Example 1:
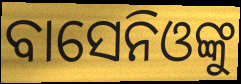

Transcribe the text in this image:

ବାସେନିଓଙ୍କୁ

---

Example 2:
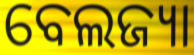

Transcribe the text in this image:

ବେଲଜ୍ୟା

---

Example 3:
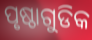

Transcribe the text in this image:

ପୃଷ୍ଠାଗୁଡିକ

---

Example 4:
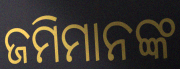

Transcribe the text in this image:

ଜମିମାନଙ୍କ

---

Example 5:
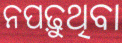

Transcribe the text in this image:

ନପଢ଼ୁଥିବା